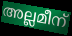
അല്ലമീന്